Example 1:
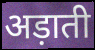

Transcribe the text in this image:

अड़ाती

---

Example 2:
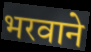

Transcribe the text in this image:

भरवाने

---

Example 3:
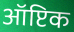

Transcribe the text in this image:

ऑप्टिक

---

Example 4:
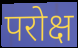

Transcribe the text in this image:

परोक्ष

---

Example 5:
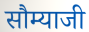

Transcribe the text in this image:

सौम्याजी